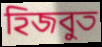
হিজবুত